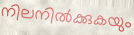
നിലനിൽക്കുകയും